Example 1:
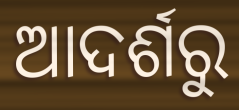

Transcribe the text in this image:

ଆଦର୍ଶରୁ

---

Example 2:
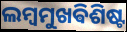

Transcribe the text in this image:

ଲମ୍ବମୁଖଵିଶିଷ୍ଟ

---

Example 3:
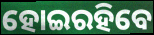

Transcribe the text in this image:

ହୋଇରହିବେ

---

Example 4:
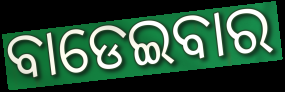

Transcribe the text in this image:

ବାଡେଇବାର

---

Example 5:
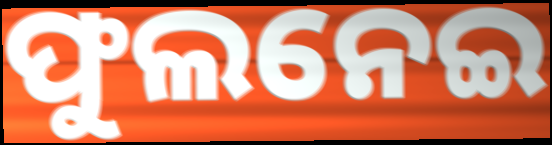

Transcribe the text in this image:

ଫୁଲନେଇ